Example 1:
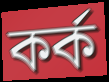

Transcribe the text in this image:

কৰ্ক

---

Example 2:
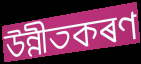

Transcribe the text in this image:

উন্নীতকৰণ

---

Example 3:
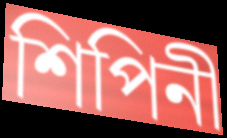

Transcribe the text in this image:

শিপিনী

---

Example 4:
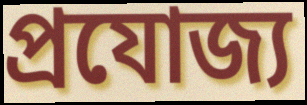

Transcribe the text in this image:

প্ৰযোজ্য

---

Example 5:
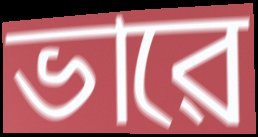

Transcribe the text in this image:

ভাৱে